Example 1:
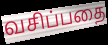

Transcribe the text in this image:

வசிப்பதை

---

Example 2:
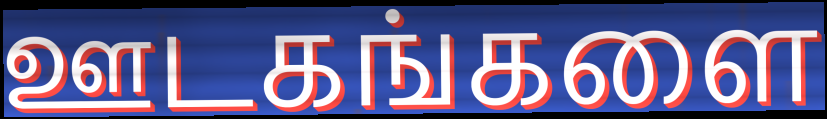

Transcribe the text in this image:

ஊடகங்களை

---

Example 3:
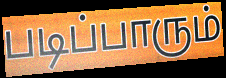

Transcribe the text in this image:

படிப்பாரும்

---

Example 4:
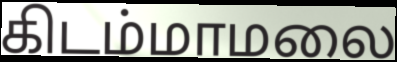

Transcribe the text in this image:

கிடம்மாமலை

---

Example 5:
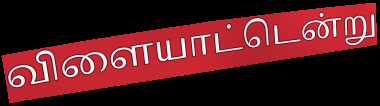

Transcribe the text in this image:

விளையாட்டென்று